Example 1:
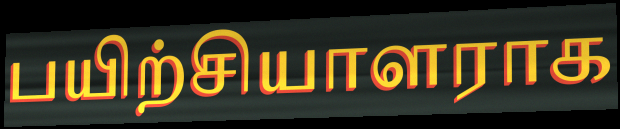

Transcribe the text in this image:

பயிற்சியாளராக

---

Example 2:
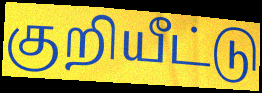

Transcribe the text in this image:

குறியீட்டு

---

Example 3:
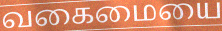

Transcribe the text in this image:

வகைமையை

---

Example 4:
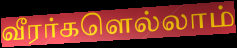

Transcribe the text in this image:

வீரர்களெல்லாம்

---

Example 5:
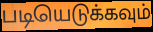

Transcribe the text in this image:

படியெடுக்கவும்